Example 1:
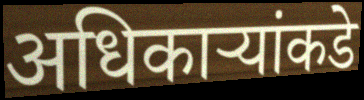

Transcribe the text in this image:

अधिकाऱ्यांकडे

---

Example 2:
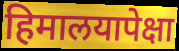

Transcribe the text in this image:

हिमालयापेक्षा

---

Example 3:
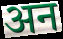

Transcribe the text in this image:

अन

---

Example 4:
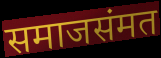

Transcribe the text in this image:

समाजसंमत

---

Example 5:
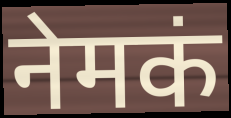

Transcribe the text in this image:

नेमकं